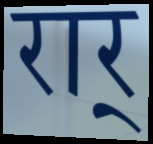
रार्